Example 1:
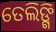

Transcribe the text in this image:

ତେଲିଙ୍ଗି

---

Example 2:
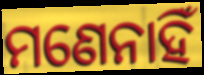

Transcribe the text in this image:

ମଣେନାହିଁ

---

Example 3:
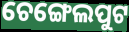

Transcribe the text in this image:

ଚେଙ୍ଗେଲପୁଟ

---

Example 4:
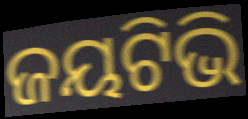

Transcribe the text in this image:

ଜୟଟିଭି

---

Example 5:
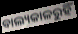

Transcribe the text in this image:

ବାଲ୍ୟକାଳରୁହିଁ